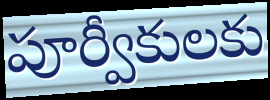
పూర్వీకులకు